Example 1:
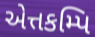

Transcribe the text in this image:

એત્તકમ્પિ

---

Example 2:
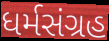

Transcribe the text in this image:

ધર્મસંગ્રહ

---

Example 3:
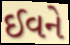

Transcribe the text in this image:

ઈવને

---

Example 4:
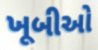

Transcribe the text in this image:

ખૂબીઓ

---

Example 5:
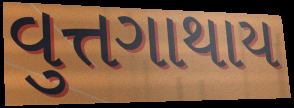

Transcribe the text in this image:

વુત્તગાથાય